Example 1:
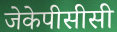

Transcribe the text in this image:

जेकेपीसीसी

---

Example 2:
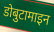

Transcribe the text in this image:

डोबुटामाइन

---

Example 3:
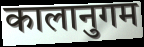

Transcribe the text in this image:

कालानुगम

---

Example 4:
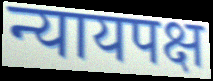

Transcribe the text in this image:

न्यायपक्ष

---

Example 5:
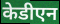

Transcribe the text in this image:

केडीएन